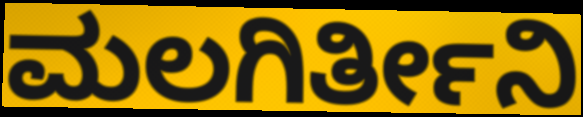
ಮಲಗಿರ್ತೀನಿ